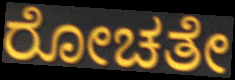
ರೋಚತೇ